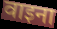
वाइना